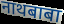
नाथबाबा